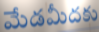
మేడమీదకు